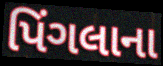
પિંગલાના